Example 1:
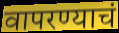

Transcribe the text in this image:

वापरण्याचं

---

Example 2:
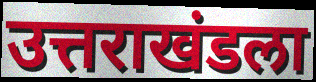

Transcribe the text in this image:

उत्तराखंडला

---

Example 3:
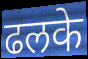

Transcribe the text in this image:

ढलके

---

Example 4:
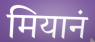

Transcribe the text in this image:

मियानं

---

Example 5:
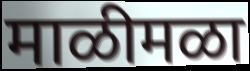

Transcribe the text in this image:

माळीमळा